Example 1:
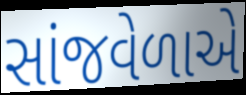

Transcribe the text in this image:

સાંજવેળાએ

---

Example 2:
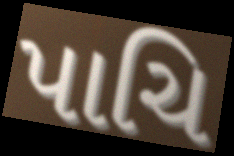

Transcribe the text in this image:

પાચિ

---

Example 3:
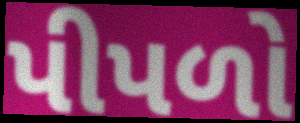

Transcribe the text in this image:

પીપળો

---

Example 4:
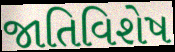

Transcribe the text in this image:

જાતિવિશેષ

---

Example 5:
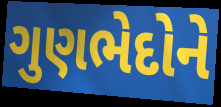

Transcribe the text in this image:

ગુણભેદોને